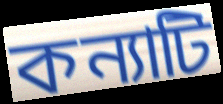
কন্যাটি